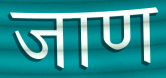
जाण